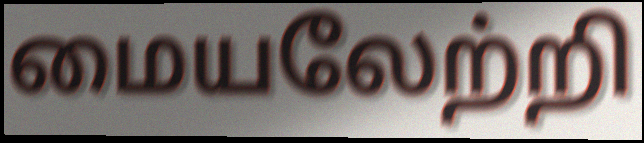
மையலேற்றி